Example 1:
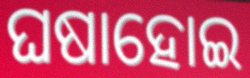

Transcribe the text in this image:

ଘଷାହୋଇ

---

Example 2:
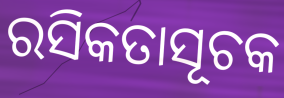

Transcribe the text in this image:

ରସିକତାସୂଚକ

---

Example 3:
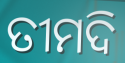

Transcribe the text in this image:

ତୀମଦି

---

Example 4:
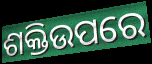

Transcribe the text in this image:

ଶକ୍ତିଉପରେ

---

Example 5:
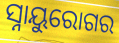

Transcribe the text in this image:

ସ୍ନାୟୁରୋଗର